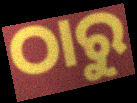
ଠାରୁ